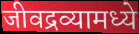
जीवद्रव्यामध्ये